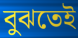
বুঝতেই